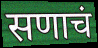
सणाचं